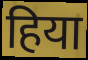
हिया